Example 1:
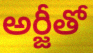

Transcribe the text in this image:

అర్జీతో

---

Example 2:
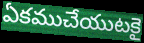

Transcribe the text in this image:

ఏకముచేయుటకై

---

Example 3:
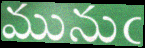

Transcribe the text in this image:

మునుఁ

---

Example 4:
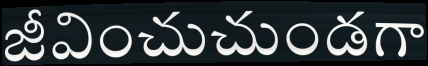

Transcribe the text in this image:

జీవించుచుండగా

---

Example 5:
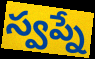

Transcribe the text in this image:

స్వప్నే